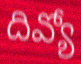
దివ్యో